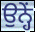
ਉਨ੍ਹੇਂ